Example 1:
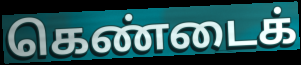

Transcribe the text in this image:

கெண்டைக்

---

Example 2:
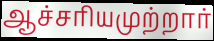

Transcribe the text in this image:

ஆச்சரியமுற்றார்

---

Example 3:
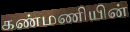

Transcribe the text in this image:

கண்மணியின்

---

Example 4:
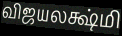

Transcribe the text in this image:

விஜயலக்ஷ்மி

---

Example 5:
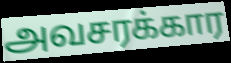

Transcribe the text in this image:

அவசரக்கார